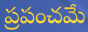
ప్రపంచమే